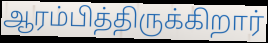
ஆரம்பித்திருக்கிறார்